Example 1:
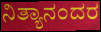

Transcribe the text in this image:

ನಿತ್ಯಾನಂದರ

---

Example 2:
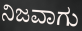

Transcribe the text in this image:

ನಿಜವಾಗು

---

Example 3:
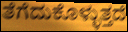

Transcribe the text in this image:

ತೆಗೆದುಕೊಳ್ಳುತ್ತದೆ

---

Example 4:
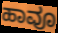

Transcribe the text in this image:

ಹಾವೂ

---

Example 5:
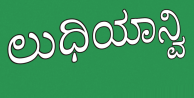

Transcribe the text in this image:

ಲುಧಿಯಾನ್ವಿ